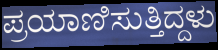
ಪ್ರಯಾಣಿಸುತ್ತಿದ್ದಳು